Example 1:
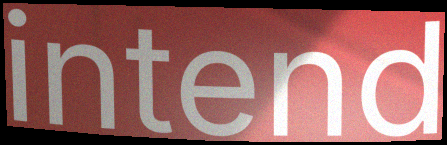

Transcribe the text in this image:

intend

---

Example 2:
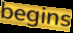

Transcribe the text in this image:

begins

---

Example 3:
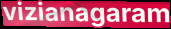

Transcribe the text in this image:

vizianagaram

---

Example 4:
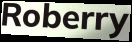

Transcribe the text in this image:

Roberry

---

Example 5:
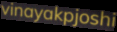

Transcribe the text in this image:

vinayakpjoshi